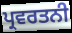
ਪ੍ਰਵਰਤਨੀ